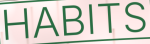
HABITS